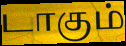
டாகும்